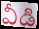
వీడి